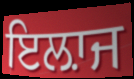
ਇਲ਼ਾਜ